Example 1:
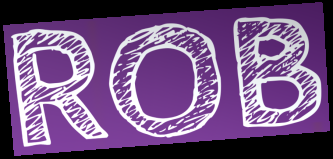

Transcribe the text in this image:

ROB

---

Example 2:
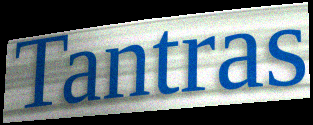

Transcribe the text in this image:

Tantras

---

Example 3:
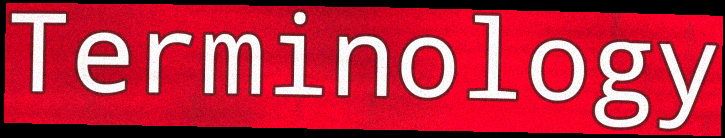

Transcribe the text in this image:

Terminology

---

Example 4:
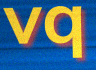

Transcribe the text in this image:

vq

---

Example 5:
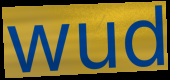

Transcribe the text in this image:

wud